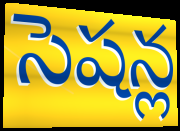
సెషన్ల